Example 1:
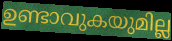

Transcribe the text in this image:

ഉണ്ടാവുകയുമില്ല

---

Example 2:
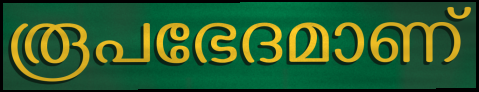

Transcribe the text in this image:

രൂപഭേദമാണ്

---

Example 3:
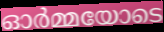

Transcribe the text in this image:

ഓർമ്മയോടെ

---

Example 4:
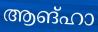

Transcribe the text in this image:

ആങ്ഹാ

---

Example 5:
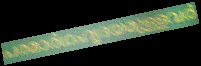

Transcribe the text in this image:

പരമാർഥഹൃദയമുള്ളവർ